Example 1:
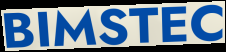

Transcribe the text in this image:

BIMSTEC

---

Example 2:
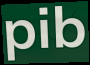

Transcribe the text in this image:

pib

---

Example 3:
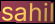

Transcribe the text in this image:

sahil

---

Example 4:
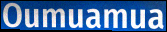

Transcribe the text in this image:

Oumuamua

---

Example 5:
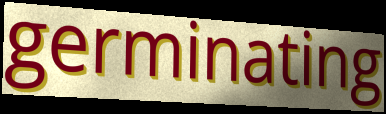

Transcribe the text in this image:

germinating